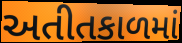
અતીતકાળમાં